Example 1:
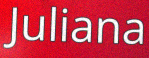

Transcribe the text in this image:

Juliana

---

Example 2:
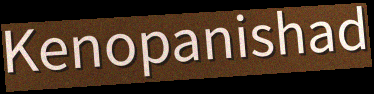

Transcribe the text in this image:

Kenopanishad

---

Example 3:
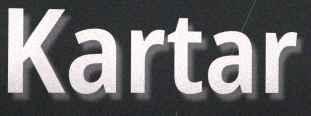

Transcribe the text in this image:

Kartar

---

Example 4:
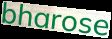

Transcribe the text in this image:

bharose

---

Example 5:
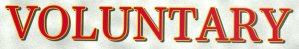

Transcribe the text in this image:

VOLUNTARY